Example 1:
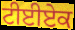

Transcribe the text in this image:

ਟੀਈਏਕ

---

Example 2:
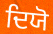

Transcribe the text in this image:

ਦਿਯੋ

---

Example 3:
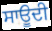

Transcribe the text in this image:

ਸਾਊਦੀ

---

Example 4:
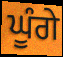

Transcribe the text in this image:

ਘੂੰਗੇ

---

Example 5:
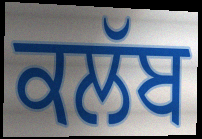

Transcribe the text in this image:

ਕਲੱਬ